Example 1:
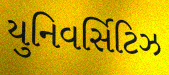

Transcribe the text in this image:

યુનિવર્સિટિઝ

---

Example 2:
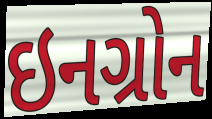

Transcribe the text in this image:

ઇનગ્રોન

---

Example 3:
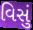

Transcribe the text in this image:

વિસું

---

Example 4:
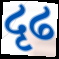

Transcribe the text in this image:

દૃઢ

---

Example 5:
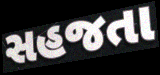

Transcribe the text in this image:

સહજતા